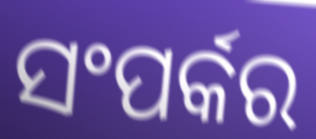
ସଂପର୍କର